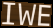
IWE